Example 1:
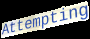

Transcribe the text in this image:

Attempting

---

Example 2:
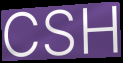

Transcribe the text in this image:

CSH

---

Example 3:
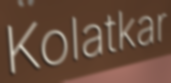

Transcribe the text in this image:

Kolatkar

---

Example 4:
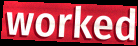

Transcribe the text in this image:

worked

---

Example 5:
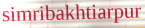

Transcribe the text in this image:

simribakhtiarpur